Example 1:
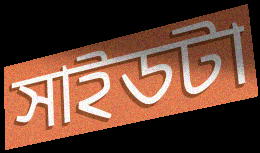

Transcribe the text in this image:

সাইডটা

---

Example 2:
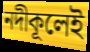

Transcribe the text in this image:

নদীকূলেই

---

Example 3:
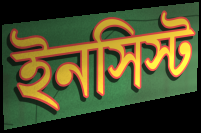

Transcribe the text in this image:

ইনসিস্ট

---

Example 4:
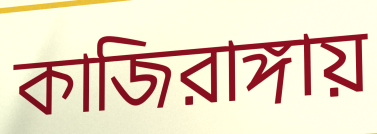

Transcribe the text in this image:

কাজিরাঙ্গায়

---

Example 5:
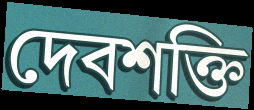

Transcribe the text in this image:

দেবশক্তি